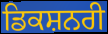
ਡਿਕਸ਼ਨਰੀ